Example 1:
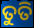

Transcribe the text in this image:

ତୁତି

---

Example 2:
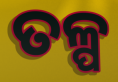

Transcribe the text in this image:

ତଳ୍ପ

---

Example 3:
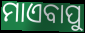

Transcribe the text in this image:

ମାଏବାପୁ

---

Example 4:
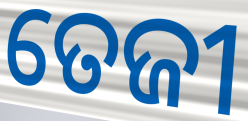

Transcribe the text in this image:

ତେଜୀ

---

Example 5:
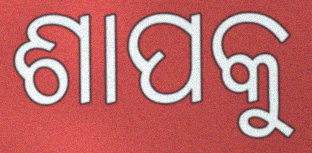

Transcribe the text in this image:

ଶାପକୁ